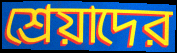
শ্রেয়াদের